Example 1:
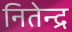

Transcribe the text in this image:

नितेन्द्र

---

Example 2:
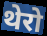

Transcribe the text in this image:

थेरो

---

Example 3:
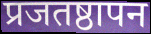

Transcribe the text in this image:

प्रजतष्ठापन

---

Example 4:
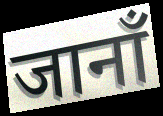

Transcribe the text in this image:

जानाँ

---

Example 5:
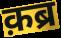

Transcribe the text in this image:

क़ब्र